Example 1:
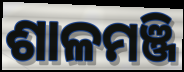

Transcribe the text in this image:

ଶାଳମଞ୍ଜି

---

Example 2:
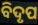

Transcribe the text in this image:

ବିଦୃପ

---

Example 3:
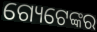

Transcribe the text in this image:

ଗ୍ୟେଟେଙ୍କର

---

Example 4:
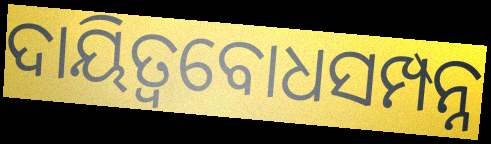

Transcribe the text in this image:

ଦାୟିତ୍ୱବୋଧସମ୍ପନ୍ନ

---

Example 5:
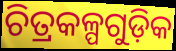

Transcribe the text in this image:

ଚିତ୍ରକଳ୍ପଗୁଡ଼ିକ